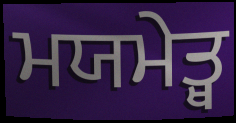
ਮਯਮੇਤ੍ਥ